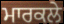
ਮਾਰਕਲੇ